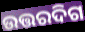
ଉତ୍ତରଦିଗ